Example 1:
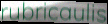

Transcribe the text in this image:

rubricaulis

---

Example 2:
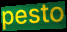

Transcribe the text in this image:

pesto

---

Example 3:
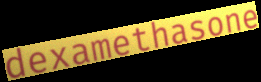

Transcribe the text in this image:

dexamethasone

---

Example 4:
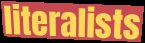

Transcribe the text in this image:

literalists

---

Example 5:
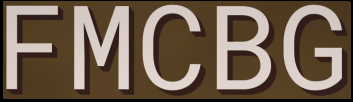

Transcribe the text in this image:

FMCBG